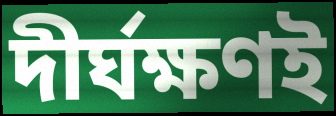
দীর্ঘক্ষণই